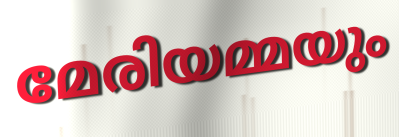
മേരിയമ്മയും